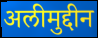
अलीमुद्दीन